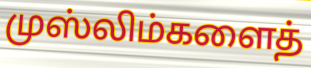
முஸ்லிம்களைத்